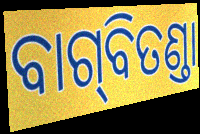
ବାଗ୍‍ବିତଣ୍ଡା